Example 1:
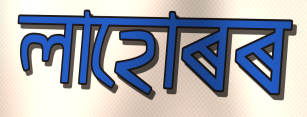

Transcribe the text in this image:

লাহোৰৰ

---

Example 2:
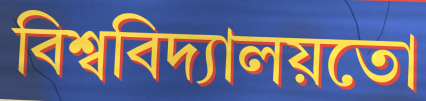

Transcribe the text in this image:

বিশ্ববিদ্য়ালয়তো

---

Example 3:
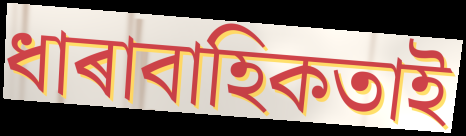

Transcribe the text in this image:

ধাৰাবাহিকতাই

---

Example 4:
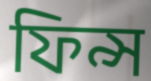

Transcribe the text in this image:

ফিন্স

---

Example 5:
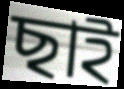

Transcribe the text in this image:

ছাই